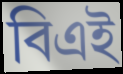
বিএই